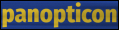
panopticon